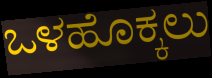
ಒಳಹೊಕ್ಕಲು